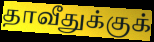
தாவீதுக்குக்